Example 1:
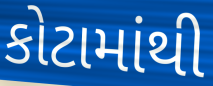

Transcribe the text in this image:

કોટામાંથી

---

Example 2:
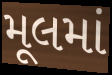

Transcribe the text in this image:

મૂલમાં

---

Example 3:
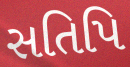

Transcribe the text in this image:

સતિપિ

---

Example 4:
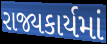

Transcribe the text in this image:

રાજ્યકાર્યમાં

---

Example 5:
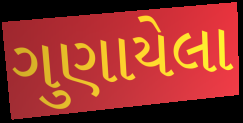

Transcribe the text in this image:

ગુણાયેલા